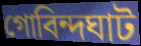
গোবিন্দঘাট